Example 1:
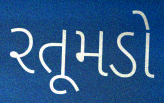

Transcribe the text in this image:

રતૂમડો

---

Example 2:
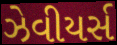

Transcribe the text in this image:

ઝેવીયર્સ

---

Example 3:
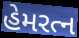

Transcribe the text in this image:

હેમરત્ન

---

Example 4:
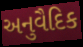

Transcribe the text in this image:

અનુવૈદિક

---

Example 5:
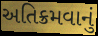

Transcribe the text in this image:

અતિક્રમવાનું